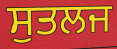
ਸੁਤਲਜ